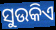
ସୁଉକିଏ